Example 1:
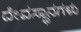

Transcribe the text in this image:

ದೇವಸ್ಥಾನಗಳು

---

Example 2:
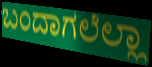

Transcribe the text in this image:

ಬಂದಾಗಲೆಲ್ಲಾ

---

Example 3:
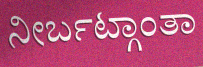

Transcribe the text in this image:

ನೀರ್ಬಟ್ಗಾಂತಾ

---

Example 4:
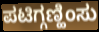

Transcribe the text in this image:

ಪಟಿಗ್ಗಣ್ಹಿಂಸು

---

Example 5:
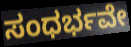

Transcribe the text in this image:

ಸಂಧರ್ಭವೇ